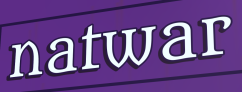
natwar